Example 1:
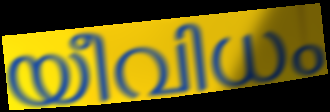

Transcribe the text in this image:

യീവിധം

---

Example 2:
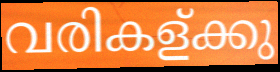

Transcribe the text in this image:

വരികള്ക്കു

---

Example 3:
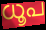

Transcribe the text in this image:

ധൂപ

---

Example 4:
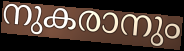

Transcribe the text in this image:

നുകരാനും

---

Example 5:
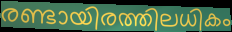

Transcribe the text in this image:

രണ്ടായിരത്തിലധികം